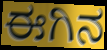
ಈಗಿನ